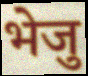
भेजु